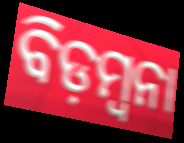
ବିଡ଼ମ୍ୱନା